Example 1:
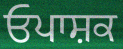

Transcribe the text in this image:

ਓਪਾਸ਼ਕ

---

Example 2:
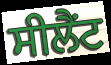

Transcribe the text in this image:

ਸੀਲੈਂਟ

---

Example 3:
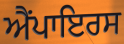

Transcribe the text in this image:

ਐਂਪਾਇਰਸ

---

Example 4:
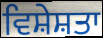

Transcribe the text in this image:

ਵਿਸ਼ੇਸ਼ਤਾ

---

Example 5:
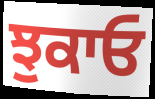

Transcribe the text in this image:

ਝੁਕਾਓ